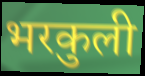
भरकुली